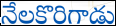
నేలకొరిగాడు